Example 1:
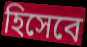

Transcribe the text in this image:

হিসেবে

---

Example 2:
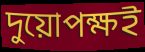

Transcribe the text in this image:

দুয়োপক্ষই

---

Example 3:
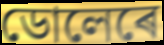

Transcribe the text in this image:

ডোলেৰে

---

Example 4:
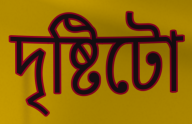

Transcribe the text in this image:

দৃষ্টিটো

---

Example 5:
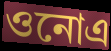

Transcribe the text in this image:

ওনোএ